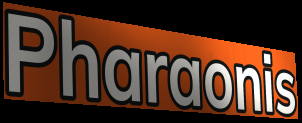
Pharaonis